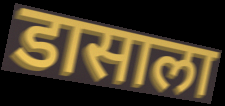
डासाला